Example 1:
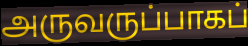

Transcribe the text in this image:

அருவருப்பாகப்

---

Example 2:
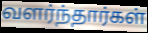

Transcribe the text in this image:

வளர்ந்தார்கள்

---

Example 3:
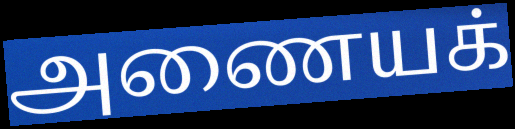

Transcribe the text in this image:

அணையக்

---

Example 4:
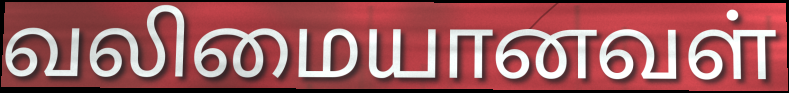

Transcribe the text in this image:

வலிமையானவள்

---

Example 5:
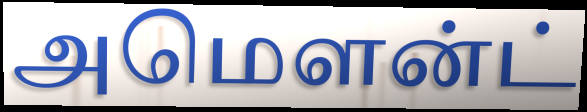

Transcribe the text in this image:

அமௌன்ட்